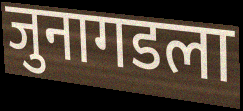
जुनागडला